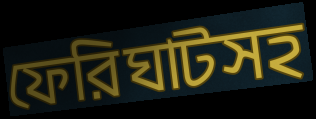
ফেরিঘাটসহ